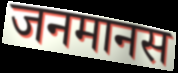
जनमानस